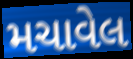
મચાવેલ